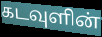
கடவுளின்